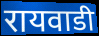
रायवाडी